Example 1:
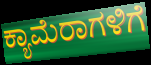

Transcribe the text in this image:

ಕ್ಯಾಮೆರಾಗಳಿಗೆ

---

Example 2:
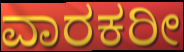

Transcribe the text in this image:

ವಾರಕರೀ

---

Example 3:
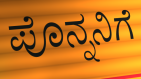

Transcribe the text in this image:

ಪೊನ್ನನಿಗೆ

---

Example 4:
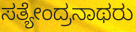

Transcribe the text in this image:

ಸತ್ಯೇಂದ್ರನಾಥರು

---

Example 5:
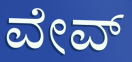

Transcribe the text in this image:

ವೇವ್